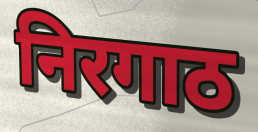
निरगाठ